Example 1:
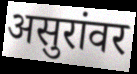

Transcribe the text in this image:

असुरांवर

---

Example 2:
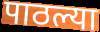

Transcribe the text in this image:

पाठल्या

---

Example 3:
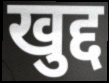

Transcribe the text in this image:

खुद्द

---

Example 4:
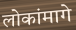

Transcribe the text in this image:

लोकांमागे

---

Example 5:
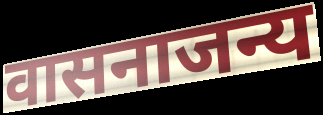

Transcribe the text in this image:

वासनाजन्य